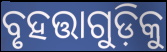
ବୃହତ୍ତାଗୁଡ଼ିକୁ